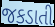
જકડાતી